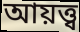
আয়ত্ত্ব